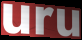
uru